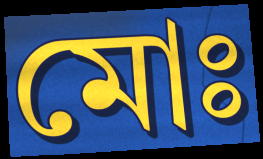
মোঃ